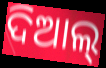
ଦିଆଲ୍